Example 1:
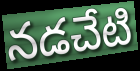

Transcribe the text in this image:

నడచేటి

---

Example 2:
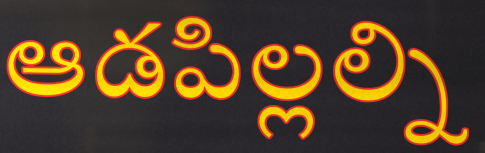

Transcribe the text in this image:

ఆడపిల్లల్ని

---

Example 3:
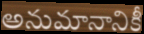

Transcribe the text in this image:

అనుమానానికీ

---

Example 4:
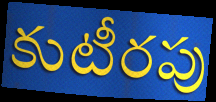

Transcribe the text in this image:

కుటీరపు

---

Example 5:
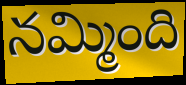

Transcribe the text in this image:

నమ్మింది